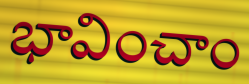
భావించాం